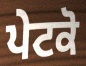
ਪੇਟਕੋ